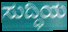
ಸುದ್ಧಿಯ